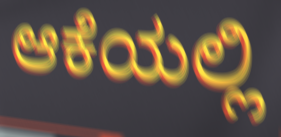
ಆಕೆಯಲ್ಲಿ